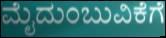
ಮೈದುಂಬುವಿಕೆಗೆ